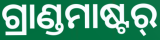
ଗ୍ରାଣ୍ଡମାଷ୍ଟର୍